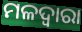
ମଳଦ୍ଵାରା